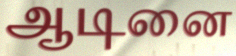
ஆடினை